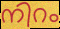
നിറം